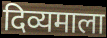
दिव्यमाला